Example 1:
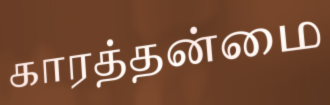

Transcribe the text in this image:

காரத்தன்மை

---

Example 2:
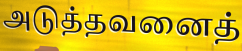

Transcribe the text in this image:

அடுத்தவனைத்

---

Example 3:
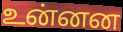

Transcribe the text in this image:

உன்னன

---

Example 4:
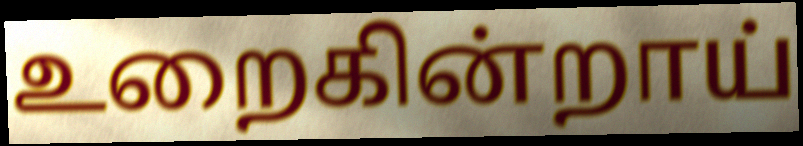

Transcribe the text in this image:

உறைகின்றாய்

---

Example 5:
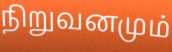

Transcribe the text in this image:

நிறுவனமும்